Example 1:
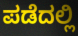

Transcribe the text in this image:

ಪಡೆದಲ್ಲಿ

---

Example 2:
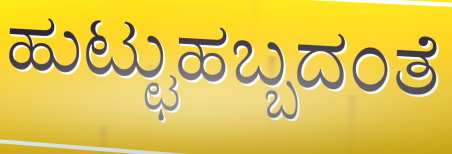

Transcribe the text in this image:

ಹುಟ್ಟುಹಬ್ಬದಂತೆ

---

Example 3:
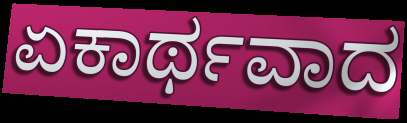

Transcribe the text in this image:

ಏಕಾರ್ಥವಾದ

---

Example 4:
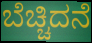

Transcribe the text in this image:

ಬೆಚ್ಚಿದನೆ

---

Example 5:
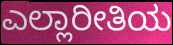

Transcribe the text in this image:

ಎಲ್ಲಾರೀತಿಯ